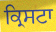
ਕ੍ਰਿਸਟਾ